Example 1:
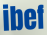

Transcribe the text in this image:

ibef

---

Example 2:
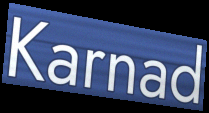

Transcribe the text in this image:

Karnad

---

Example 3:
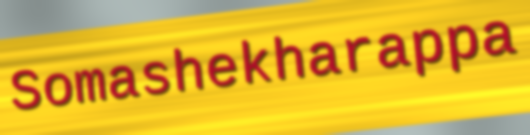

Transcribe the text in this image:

Somashekharappa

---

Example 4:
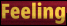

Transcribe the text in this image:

Feeling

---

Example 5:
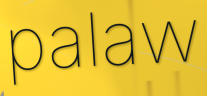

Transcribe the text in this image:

palaw